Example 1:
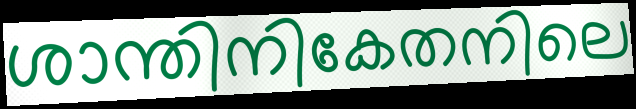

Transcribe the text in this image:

ശാന്തിനികേതനിലെ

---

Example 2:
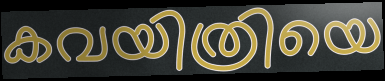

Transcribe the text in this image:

കവയിത്രിയെ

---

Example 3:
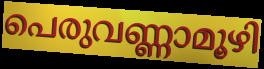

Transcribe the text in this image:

പെരുവണ്ണാമൂഴി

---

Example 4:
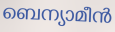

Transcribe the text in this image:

ബെന്യാമീൻ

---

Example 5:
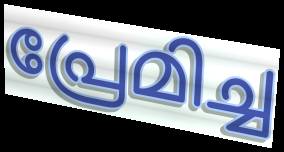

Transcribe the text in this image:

പ്രേമിച്ച